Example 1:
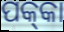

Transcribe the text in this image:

ପକ୍‌କା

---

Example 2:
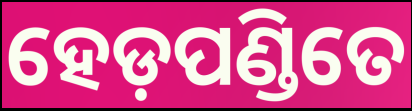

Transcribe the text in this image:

ହେଡ଼ପଣ୍ଡିତେ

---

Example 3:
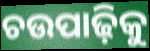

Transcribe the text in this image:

ଚଉପାଢ଼ିକୁ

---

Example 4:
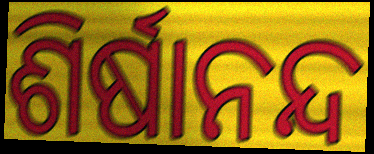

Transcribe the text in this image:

ଶିର୍ଷାନନ୍ଦ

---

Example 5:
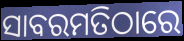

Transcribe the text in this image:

ସାବରମତିଠାରେ